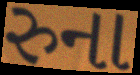
રુના